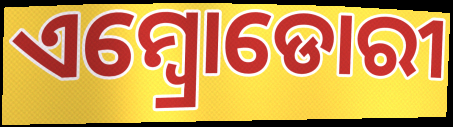
ଏମ୍ବ୍ରୋଡୋରୀ